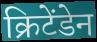
क्रिटेंडेन